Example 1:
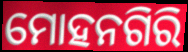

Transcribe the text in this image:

ମୋହନଗିରି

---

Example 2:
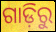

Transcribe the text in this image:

ଗାଡ଼ିରୁ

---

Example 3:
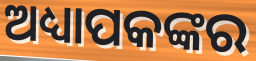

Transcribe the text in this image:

ଅଧ୍ୟାପକଙ୍କର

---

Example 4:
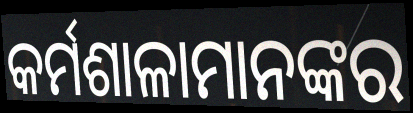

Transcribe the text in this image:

କର୍ମଶାଳାମାନଙ୍କର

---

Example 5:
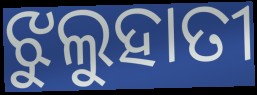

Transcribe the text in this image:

ଝୁଲୁହାତୀ